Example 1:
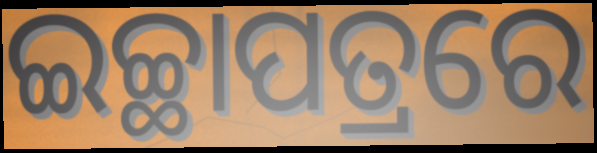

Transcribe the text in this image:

ଇଚ୍ଛାପତ୍ରରେ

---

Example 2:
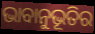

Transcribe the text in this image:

ଭାବାନୁଭୂତିର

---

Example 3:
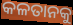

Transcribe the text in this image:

କଳତାନକୁ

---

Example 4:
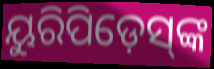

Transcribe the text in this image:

ୟୁରିପିଡ଼େସ୍‌ଙ୍କ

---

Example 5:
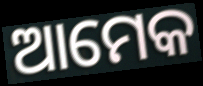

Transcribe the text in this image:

ଆମେକ